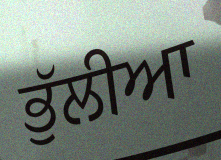
ਭੁੱਲੀਆ